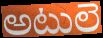
అటులె